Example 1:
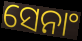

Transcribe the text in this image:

ସେନାଂ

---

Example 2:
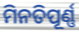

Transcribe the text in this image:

ମିନତିପୂର୍ଣ୍ଣ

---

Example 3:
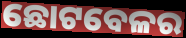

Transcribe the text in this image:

ଛୋଟବେଳର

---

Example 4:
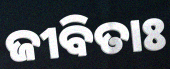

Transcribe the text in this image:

ଜୀବିତାଃ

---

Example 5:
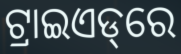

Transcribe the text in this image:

ଟ୍ରାଇଏଡ୍‌ରେ